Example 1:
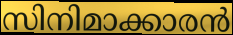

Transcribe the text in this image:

സിനിമാക്കാരൻ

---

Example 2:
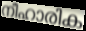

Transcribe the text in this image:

നീഹാരിക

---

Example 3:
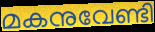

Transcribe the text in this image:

മകനുവേണ്ടി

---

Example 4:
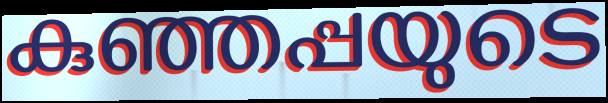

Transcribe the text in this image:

കുഞ്ഞപ്പയുടെ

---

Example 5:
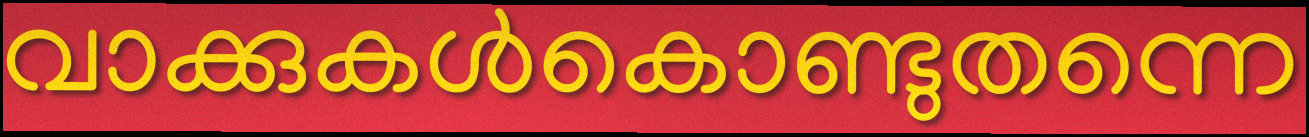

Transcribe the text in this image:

വാക്കുകൾകൊണ്ടുതന്നെ